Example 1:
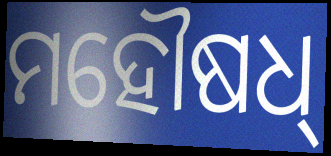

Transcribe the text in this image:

ମହୌଷଧ୍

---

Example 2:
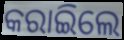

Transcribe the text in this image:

କରାଇିଲେ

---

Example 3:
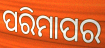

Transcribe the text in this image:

ପରିମାପର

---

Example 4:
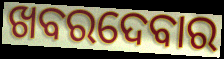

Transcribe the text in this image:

ଖବରଦେବାର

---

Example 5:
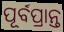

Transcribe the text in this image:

ପୂର୍ବପ୍ରାନ୍ତ